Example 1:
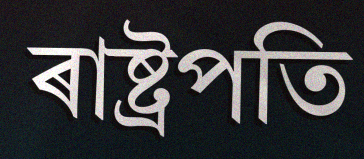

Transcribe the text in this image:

ৰাষ্ট্ৰপতি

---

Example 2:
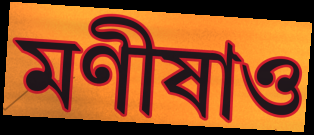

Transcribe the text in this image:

মণীষাও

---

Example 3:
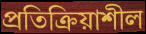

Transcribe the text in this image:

প্ৰতিক্ৰিয়াশীল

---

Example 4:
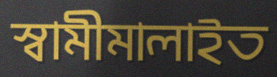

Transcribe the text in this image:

স্বামীমালাইত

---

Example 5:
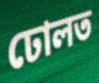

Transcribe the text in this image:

ঢোলত